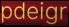
pdeigr